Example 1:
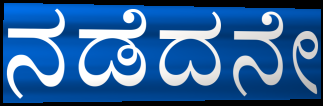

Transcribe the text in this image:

ನಡೆದನೇ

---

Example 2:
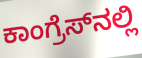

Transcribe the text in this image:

ಕಾಂಗ್ರೆಸ್‌ನಲ್ಲಿ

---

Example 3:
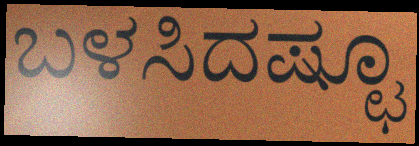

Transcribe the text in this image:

ಬಳಸಿದಷ್ಟೂ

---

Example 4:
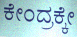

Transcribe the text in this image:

ಕೇಂದ್ರಕ್ಕೇ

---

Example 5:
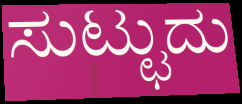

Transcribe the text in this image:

ಸುಟ್ಟುದು